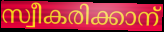
സ്വീകരിക്കാന്